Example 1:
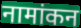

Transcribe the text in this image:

नामांकन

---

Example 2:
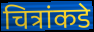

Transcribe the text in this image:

चित्रांकडे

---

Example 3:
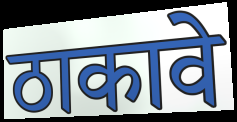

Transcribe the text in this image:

ठाकावे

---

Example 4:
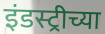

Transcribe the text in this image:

इंडस्ट्रीच्या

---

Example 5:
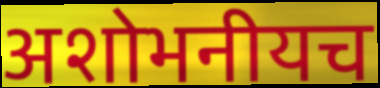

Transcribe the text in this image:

अशोभनीयच